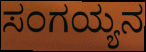
ಸಂಗಯ್ಯನ